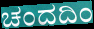
ಚಂದದಿಂ